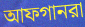
আফগানরা